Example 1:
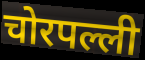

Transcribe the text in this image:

चोरपल्ली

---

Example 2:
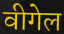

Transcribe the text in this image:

वीगेल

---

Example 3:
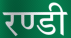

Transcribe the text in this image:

रण्डी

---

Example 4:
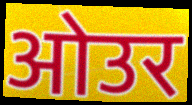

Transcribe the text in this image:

ओउर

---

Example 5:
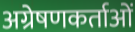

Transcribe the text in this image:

अग्रेषणकर्ताओं